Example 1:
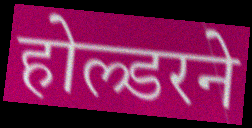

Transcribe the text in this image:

होल्डरने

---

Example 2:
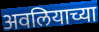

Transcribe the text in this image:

अवलियाच्या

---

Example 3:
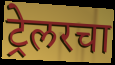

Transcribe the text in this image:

ट्रेलरचा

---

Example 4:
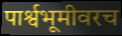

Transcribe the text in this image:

पार्श्वभूमीवरच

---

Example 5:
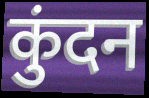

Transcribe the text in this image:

कुंदन